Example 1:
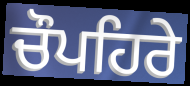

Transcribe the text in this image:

ਚੌਪਹਿਰੇ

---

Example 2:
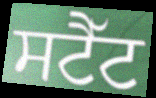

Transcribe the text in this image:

ਸਟੈੱਟ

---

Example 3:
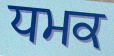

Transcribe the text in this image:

ਧਮਕ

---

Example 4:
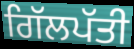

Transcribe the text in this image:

ਗਿੱਲਪੱਤੀ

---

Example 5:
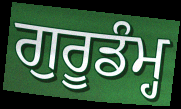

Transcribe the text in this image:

ਗੁਰੂਡੰਮ੍ਹ